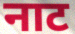
नाट